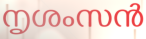
നൃശംസൻ